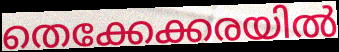
തെക്കേക്കരയിൽ